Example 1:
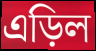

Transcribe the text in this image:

এড়িল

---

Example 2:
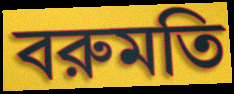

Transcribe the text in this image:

বরুমতি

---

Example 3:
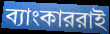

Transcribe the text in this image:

ব্যাংকাররাই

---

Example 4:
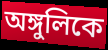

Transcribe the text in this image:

অঙ্গুলিকে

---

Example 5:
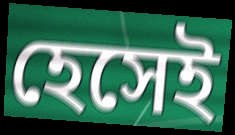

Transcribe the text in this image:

হেসেই